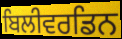
ਬਿਲੀਵਰਡਿਨ